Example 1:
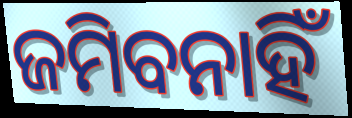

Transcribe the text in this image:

ଜମିବନାହିଁ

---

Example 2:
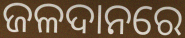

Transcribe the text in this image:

ଜଳଦାନରେ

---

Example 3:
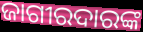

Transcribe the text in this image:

ଜାଗୀରଦାରଙ୍କ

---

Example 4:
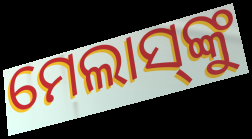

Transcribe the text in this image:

ମେଲାସ୍‌ଙ୍କୁ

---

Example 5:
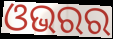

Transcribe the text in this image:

ଓଭରର